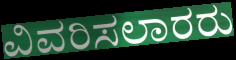
ವಿವರಿಸಲಾರರು